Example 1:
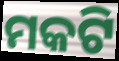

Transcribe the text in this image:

ମକଟି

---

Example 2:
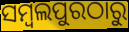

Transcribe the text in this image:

ସମ୍ବଲପୁରଠାରୁ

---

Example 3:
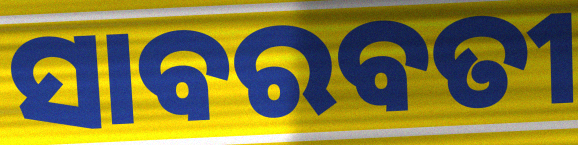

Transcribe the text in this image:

ସାବରବତୀ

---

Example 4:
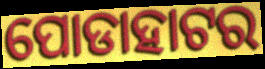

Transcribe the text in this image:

ପୋଡାହାଟର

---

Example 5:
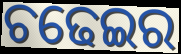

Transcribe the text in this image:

ଚଢେଇର